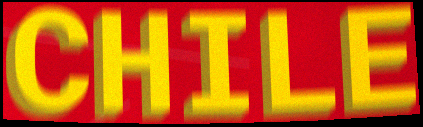
CHILE